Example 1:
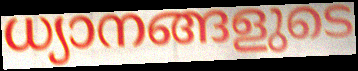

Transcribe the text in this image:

ധ്യാനങ്ങളുടെ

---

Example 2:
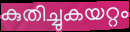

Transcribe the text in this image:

കുതിച്ചുകയറ്റം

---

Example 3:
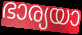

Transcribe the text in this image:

ഭാര്യയാ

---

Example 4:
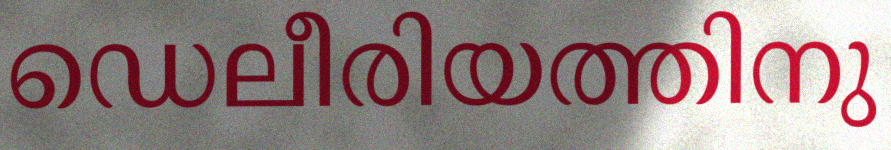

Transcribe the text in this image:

ഡെലീരിയത്തിനു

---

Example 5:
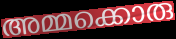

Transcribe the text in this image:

അമ്മക്കൊരു